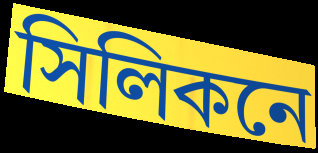
সিলিকনে